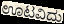
ಊಟವಿದು